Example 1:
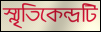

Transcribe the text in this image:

স্মৃতিকেন্দ্রটি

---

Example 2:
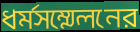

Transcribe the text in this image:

ধর্মসম্মেলনের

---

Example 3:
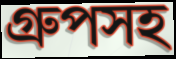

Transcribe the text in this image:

গ্রুপসহ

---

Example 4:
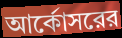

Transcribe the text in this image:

আর্কোসরের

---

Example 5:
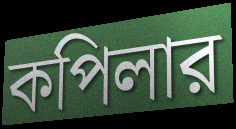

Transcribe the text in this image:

কপিলার